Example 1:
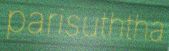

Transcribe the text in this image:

parisuththa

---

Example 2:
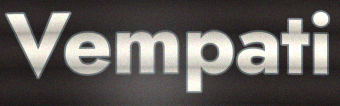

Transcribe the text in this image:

Vempati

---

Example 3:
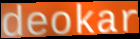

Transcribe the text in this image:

deokar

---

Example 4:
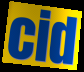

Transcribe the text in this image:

cid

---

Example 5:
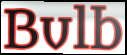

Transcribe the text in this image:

Bulb